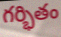
గర్భితం